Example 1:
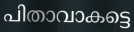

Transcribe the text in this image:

പിതാവാകട്ടെ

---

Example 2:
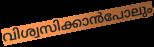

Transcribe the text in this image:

വിശ്വസിക്കാൻപോലും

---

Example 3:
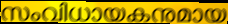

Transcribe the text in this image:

സംവിധായകനുമായ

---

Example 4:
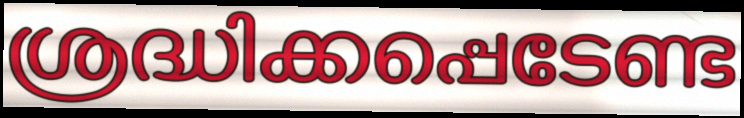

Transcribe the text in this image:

ശ്രദ്ധിക്കപ്പെടേണ്ട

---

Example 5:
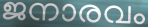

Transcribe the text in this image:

ജനാരവം